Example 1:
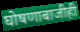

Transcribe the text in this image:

घोषणाबाजीही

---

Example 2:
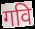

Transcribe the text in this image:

गवि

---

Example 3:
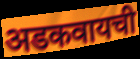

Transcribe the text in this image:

अडकवायची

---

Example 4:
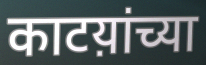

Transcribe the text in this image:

काटय़ांच्या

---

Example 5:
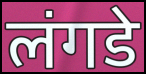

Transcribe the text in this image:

लंगडे